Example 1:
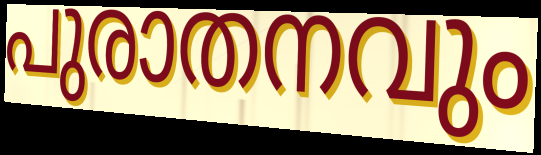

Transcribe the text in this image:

പുരാതനവും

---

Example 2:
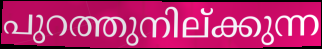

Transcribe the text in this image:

പുറത്തുനില്ക്കുന്ന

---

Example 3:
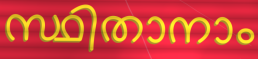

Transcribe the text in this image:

സ്ഥിതാനാം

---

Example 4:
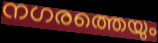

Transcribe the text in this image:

നഗരത്തെയും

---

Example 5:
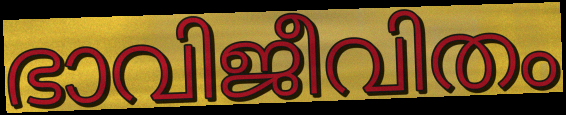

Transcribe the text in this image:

ഭാവിജീവിതം